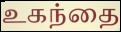
உகந்தை